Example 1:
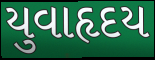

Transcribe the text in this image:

યુવાહૃદય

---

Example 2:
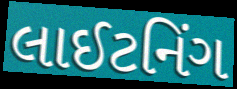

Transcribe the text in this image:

લાઈટનિંગ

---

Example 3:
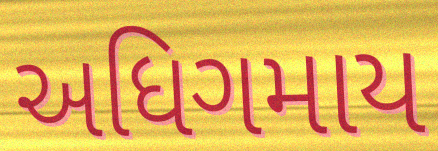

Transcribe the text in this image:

અધિગમાય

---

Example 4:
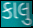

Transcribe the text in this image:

કાલુ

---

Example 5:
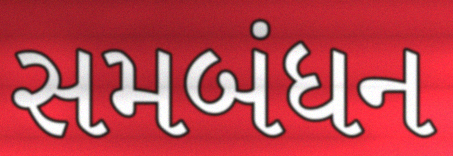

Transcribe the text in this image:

સમબંધન